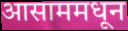
आसाममधून